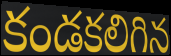
కండకలిగిన